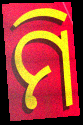
ମି